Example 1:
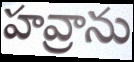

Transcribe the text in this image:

హవ్రాను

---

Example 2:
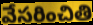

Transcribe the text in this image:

వేసరించితి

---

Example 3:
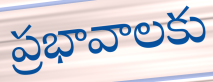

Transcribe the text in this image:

ప్రభావాలకు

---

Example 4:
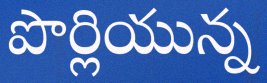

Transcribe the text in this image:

పొర్లియున్న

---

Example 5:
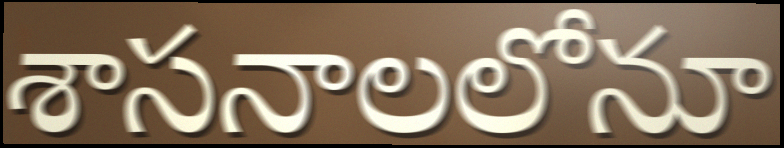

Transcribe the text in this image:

శాసనాలలోనూ